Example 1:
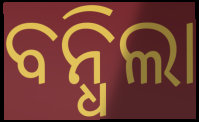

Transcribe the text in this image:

ବନ୍ଧିଲା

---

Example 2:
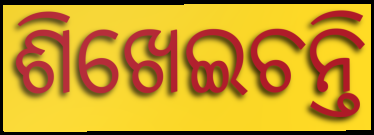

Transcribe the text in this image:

ଶିଖେଇଚନ୍ତି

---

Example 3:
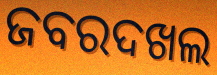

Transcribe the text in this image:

ଜବରଦଖଲ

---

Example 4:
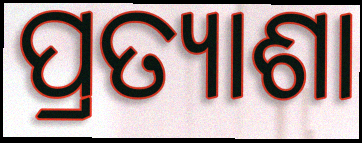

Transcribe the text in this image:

ପ୍ରତ୍ୟାଶା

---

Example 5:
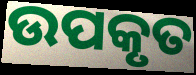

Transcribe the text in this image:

ଉପକୃତ